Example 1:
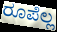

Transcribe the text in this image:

ರೂಪೆಲ್ಲ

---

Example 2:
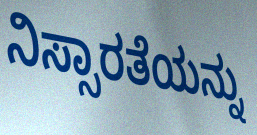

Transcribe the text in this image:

ನಿಸ್ಸಾರತೆಯನ್ನು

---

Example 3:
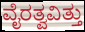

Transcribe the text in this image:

ವೈರತ್ವವಿತ್ತು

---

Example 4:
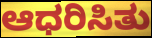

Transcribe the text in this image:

ಆಧರಿಸಿತು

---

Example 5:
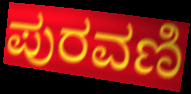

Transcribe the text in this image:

ಪುರವಣಿ